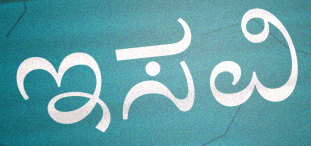
ಇಸವಿ